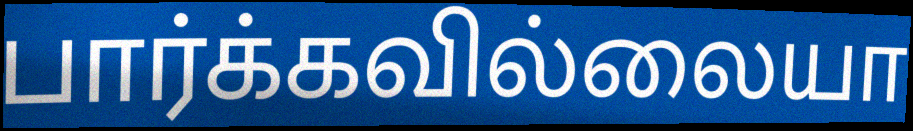
பார்க்கவில்லையா